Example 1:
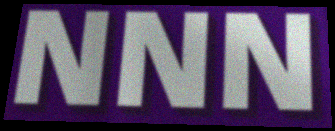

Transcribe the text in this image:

NNN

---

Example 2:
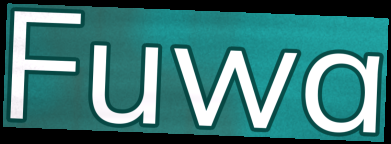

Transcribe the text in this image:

Fuwa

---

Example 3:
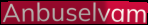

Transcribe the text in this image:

Anbuselvam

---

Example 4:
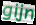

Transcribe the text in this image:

gijn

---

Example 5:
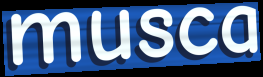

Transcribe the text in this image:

musca